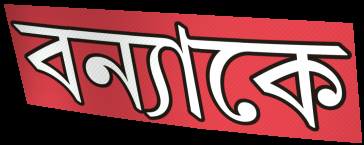
বন্যাকে